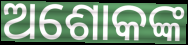
ଅଶୋକଙ୍କ